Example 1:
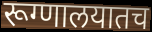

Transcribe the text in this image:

रूग्णालयातच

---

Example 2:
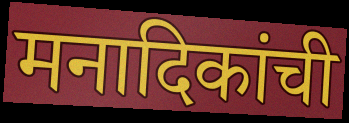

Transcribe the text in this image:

मनादिकांची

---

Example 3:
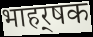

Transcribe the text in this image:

भाहर्षक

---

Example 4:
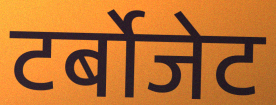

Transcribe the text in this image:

टर्बोजेट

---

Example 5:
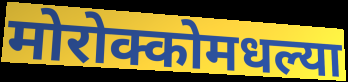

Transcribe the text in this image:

मोरोक्कोमधल्या